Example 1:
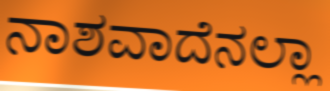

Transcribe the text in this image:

ನಾಶವಾದೆನಲ್ಲಾ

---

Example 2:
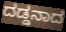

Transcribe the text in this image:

ದಡ್ಡನಾದ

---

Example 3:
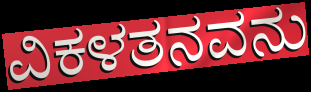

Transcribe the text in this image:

ವಿಕಳತನವನು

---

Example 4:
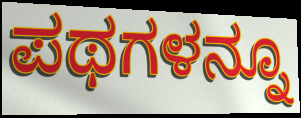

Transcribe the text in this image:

ಪಥಗಳನ್ನೂ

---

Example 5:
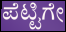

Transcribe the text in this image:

ಪೆಟ್ಟಿಗೇ